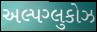
અલ્પગ્લુકોઝ